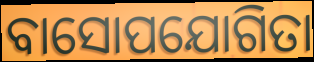
ବାସୋପଯୋଗିତା